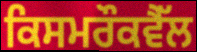
ਕਿਸਮਰੌਕਵੈੱਲ